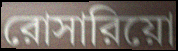
রোসারিয়ো